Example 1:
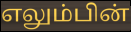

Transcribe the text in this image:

எலும்பின்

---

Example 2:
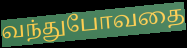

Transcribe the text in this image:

வந்துபோவதை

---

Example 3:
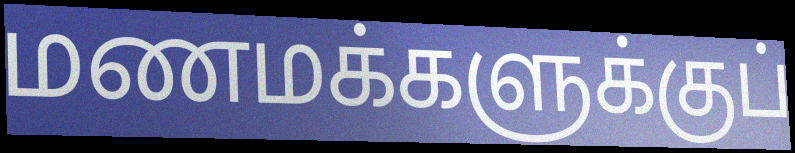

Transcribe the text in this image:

மணமக்களுக்குப்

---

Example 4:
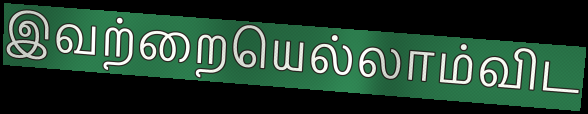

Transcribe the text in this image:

இவற்றையெல்லாம்விட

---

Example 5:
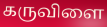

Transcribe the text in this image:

கருவிளை